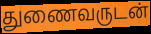
துணைவருடன்